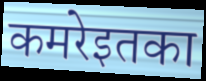
कमरेइतका